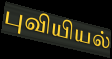
புவியியல்